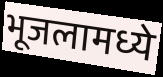
भूजलामध्ये